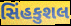
સિંહકુશલ